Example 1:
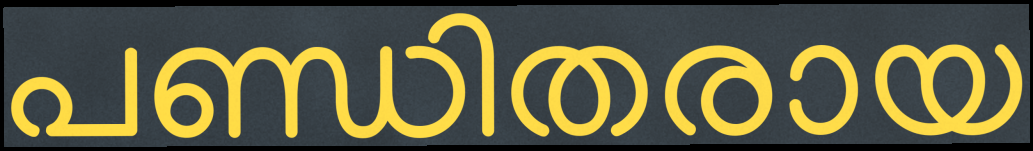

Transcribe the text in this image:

പണ്ഡിതരായ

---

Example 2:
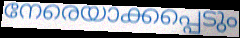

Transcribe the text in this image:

നേരെയാക്കപ്പെടും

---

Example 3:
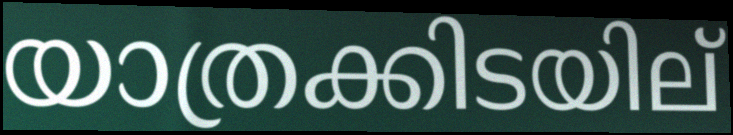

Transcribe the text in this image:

യാത്രക്കിടയില്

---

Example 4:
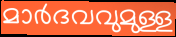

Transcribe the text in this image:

മാർദവവുമുള്ള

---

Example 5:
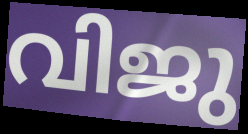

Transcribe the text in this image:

വിജു